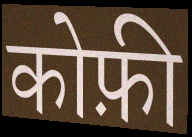
कोफ़ी